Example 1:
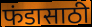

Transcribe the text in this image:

फंडासाठी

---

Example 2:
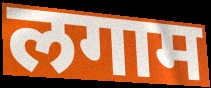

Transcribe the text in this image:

लगाम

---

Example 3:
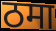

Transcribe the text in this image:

ठमा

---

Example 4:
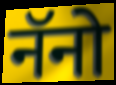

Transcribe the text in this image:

नॅनो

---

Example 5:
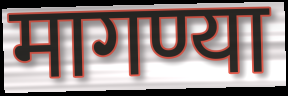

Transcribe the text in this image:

मागण्या